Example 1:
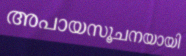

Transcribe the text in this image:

അപായസൂചനയായി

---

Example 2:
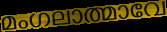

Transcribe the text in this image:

മംഗലാത്മാവേ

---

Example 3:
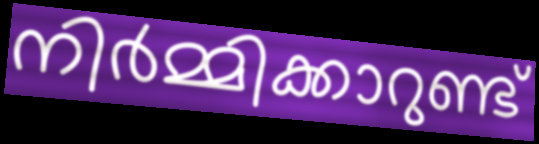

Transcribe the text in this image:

നിർമ്മിക്കാറുണ്ട്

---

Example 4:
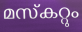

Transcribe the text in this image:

മസ്‌കറ്റും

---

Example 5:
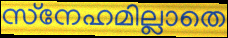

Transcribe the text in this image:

സ്‌നേഹമില്ലാതെ